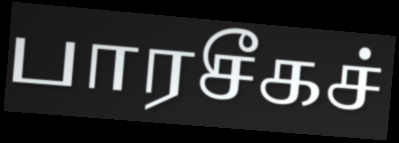
பாரசீகச்